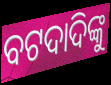
ବଟଦାଦିଙ୍କୁ